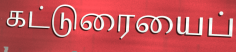
கட்டுரையைப்